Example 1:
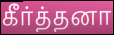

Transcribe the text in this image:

கீர்த்தனா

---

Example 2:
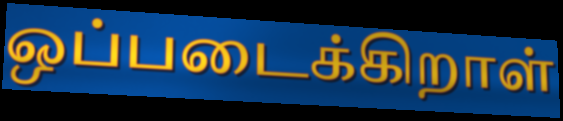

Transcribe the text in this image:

ஒப்படைக்கிறாள்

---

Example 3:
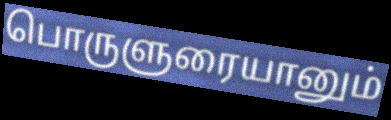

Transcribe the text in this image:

பொருளுரையானும்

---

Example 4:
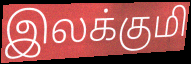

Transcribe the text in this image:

இலக்குமி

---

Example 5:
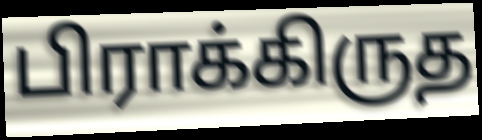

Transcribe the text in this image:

பிராக்கிருத